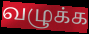
வழுக்க